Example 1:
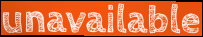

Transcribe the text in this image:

unavailable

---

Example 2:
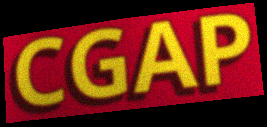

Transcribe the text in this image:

CGAP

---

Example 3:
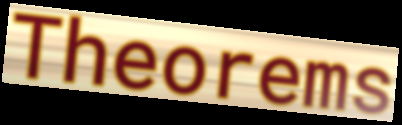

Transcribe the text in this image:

Theorems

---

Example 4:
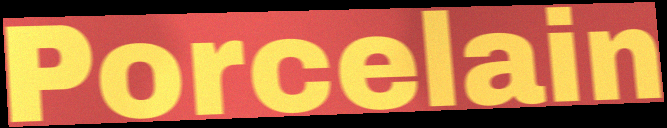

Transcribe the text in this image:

Porcelain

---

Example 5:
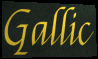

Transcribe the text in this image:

Gallic